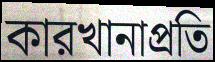
কারখানাপ্রতি